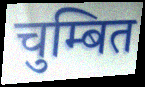
चुम्बित